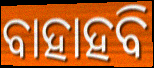
ବାହାହବି